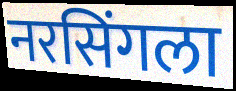
नरसिंगला